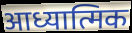
आध्यात्मिक